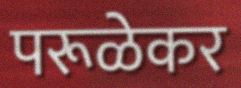
परूळेकर